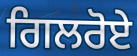
ਗਿਲਰੋਏ